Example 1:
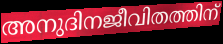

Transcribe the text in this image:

അനുദിനജീവിതത്തിന്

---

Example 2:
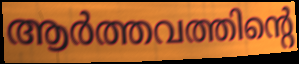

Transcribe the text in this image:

ആർത്തവത്തിന്റെ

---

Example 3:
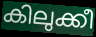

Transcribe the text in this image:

കിലുക്കീ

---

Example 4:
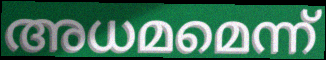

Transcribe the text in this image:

അധമമെന്ന്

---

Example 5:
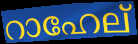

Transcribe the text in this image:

റാഹേല്